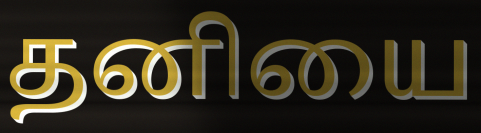
தனியை